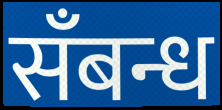
सँबन्ध